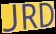
JRD